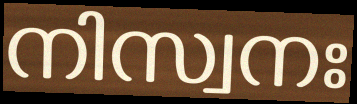
നിസ്വനഃ